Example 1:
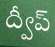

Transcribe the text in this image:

ద్వీప్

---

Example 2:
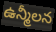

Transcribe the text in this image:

ఉన్మీలన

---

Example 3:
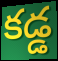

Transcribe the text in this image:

కడ్డ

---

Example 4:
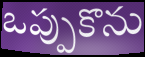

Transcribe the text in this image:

ఒప్పుకొను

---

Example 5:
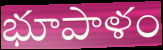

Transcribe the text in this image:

భూపాళం